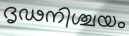
ദൃഢനിശ്ചയം